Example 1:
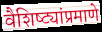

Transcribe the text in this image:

वैशिष्ट्यांप्रमाणे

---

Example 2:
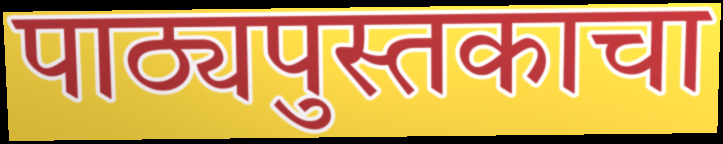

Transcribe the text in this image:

पाठ्यपुस्तकाचा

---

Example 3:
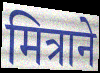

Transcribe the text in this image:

मित्राने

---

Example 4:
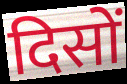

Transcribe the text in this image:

दिसों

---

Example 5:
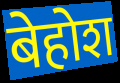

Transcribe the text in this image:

बेहोश